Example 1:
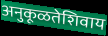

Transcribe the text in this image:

अनुकूळतेशिवाय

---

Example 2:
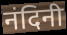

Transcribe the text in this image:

नंदिनी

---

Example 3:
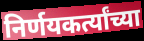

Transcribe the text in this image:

निर्णयकर्त्यांच्या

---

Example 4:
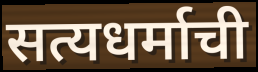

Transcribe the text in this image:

सत्यधर्माची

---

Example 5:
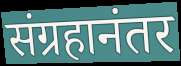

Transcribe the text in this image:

संग्रहानंतर